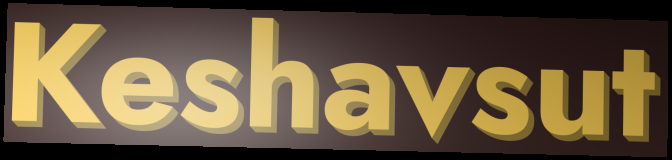
Keshavsut